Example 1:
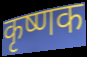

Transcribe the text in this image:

कृष्णक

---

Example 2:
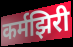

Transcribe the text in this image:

कर्मझिरी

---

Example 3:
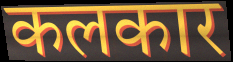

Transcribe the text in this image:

कलकार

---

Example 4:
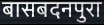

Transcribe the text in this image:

बासबदनपुरा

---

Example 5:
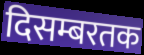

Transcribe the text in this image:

दिसम्बरतक